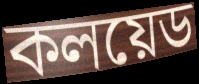
কলয়েড